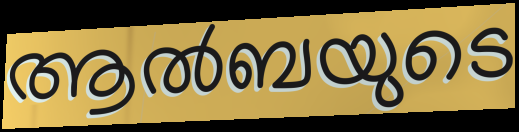
ആൽബയുടെ